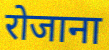
रोजाना